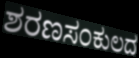
ಶರಣಸಂಕುಲದ